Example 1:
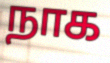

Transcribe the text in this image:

நாக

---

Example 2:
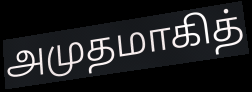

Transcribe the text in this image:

அமுதமாகித்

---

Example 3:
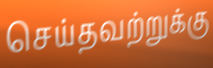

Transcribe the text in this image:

செய்தவற்றுக்கு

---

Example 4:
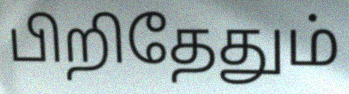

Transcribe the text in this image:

பிறிதேதும்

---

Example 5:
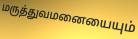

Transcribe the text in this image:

மருத்துவமனையையும்